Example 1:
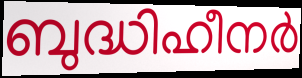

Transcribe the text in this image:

ബുദ്ധിഹീനർ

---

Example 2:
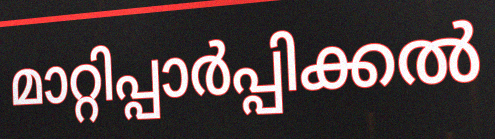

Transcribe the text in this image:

മാറ്റിപ്പാർപ്പിക്കൽ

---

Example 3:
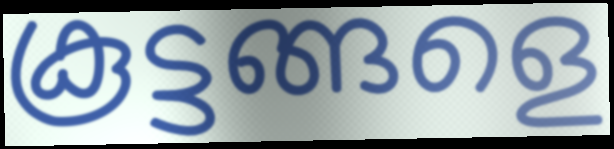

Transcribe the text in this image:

കൂട്ടങ്ങളെ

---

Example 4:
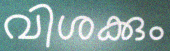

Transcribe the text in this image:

വിശക്കും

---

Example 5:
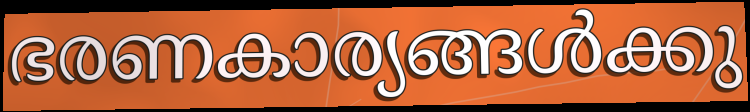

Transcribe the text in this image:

ഭരണകാര്യങ്ങൾക്കു